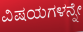
ವಿಷಯಗಳನ್ನೇ